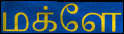
மக்ளே